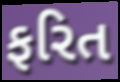
ફરિત